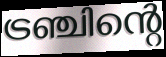
ട്രഞ്ചിന്റെ